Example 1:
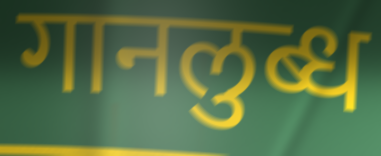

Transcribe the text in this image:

गानलुब्ध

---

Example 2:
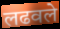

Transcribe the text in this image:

लढवले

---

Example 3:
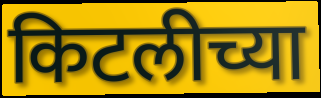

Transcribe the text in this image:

किटलीच्या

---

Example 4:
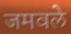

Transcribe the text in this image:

जमवले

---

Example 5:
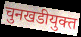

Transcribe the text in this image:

चुनखडीयुक्त